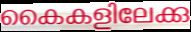
കൈകളിലേക്കു